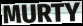
MURTY